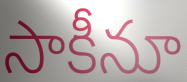
సాకీనూ